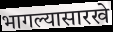
भागल्यासारखे